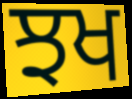
ਝਖ